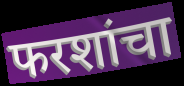
फरशांचा